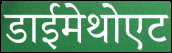
डाईमेथोएट